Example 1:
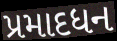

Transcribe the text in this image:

પ્રમાદધન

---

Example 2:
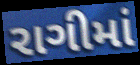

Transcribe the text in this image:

રાગીમાં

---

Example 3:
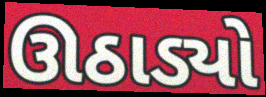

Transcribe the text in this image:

ઊઠાડ્યો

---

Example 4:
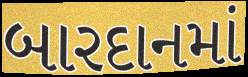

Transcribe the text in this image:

બારદાનમાં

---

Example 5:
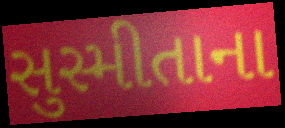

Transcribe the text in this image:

સુસ્મીતાના